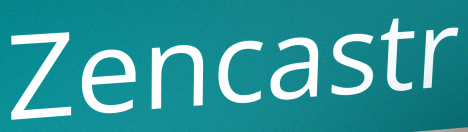
Zencastr